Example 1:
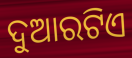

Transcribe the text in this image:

ଦୁଆରଟିଏ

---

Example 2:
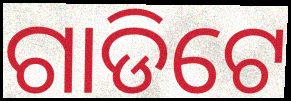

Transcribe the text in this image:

ଗାଡିଟେ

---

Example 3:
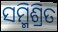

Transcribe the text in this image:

ସମ୍ମିଶ୍ରିତ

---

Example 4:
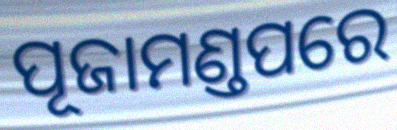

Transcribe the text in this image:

ପୂଜାମଣ୍ଡପରେ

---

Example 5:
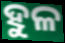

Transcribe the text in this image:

ହୁଳ